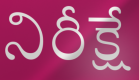
నిరీక్షే